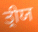
ਤ੍ਰੀਯ